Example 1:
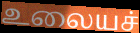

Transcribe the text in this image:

உலையச்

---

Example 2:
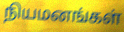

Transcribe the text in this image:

நியமனங்கள்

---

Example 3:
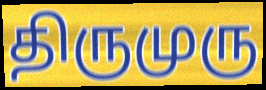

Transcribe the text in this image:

திருமுரு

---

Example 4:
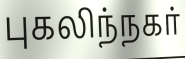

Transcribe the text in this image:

புகலிந்நகர்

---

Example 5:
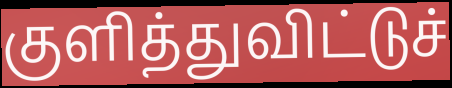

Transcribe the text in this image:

குளித்துவிட்டுச்